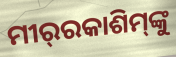
ମୀର୍‌ରକାଶିମ୍‌ଙ୍କୁ